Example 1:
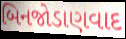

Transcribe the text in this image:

બિનજોડાણવાદ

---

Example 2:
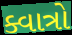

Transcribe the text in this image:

ક્વાત્રો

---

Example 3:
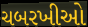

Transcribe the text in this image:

ચબરખીઓ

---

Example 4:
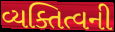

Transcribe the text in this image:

વ્યક્તિત્વની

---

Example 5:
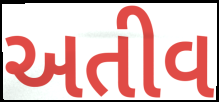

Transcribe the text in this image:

અતીવ